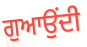
ਗੁਆਉਂਦੀ